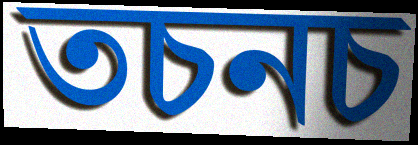
তচনচ